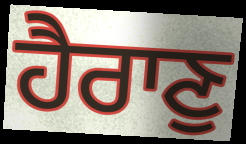
ਹੈਰਾਣੁ